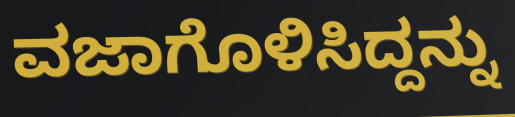
ವಜಾಗೊಳಿಸಿದ್ದನ್ನು